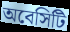
অবেসিটি